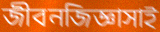
জীবনজিজ্ঞাসাই